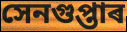
সেনগুপ্তাৰ